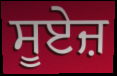
ਸੂਏਜ਼